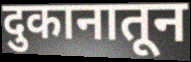
दुकानातून